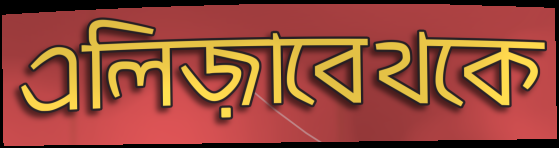
এলিজ়াবেথকে